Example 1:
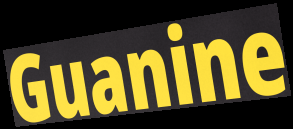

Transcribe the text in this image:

Guanine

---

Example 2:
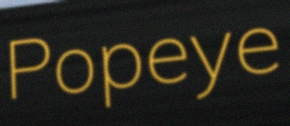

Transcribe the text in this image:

Popeye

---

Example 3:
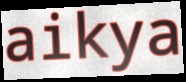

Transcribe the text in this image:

aikya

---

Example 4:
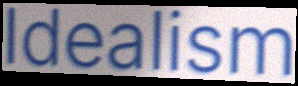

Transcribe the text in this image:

Idealism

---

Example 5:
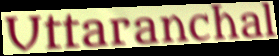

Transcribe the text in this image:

Uttaranchal